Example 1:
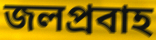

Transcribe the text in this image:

জলপ্ৰবাহ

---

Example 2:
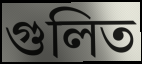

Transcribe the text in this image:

গুলিত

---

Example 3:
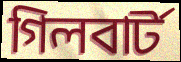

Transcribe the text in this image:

গিলবাৰ্ট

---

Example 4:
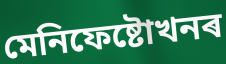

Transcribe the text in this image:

মেনিফেষ্টোখনৰ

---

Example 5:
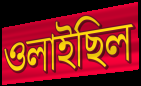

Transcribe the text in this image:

ওলাইছিল